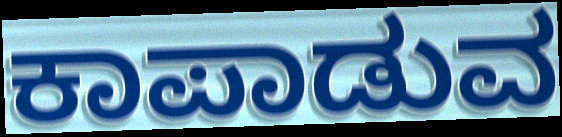
ಕಾಪಾಡುವ